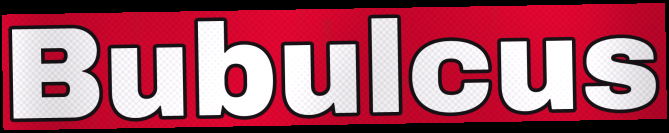
Bubulcus